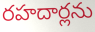
రహదార్లను